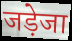
जड़ेजा